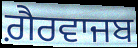
ਗ਼ੈਰਵਾਜਬ